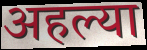
अहल्या